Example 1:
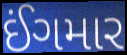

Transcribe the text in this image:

ઈંગમાર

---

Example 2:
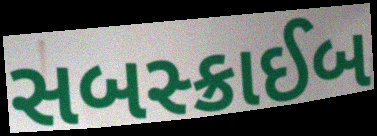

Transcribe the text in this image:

સબસ્ક્રાઈબ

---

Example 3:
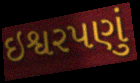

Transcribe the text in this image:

ઇશ્વરપણું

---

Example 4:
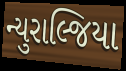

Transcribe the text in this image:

ન્યુરાલ્જિયા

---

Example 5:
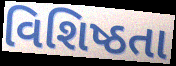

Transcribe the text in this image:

વિશિષ્ઠતા